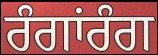
ਰੰਗਾਂਰੰਗ